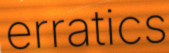
erratics